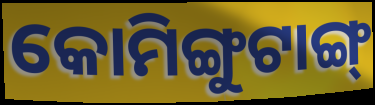
କୋମିଙ୍ଗୁଟାଙ୍ଗ୍